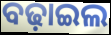
ବଢ଼ାଇଲ